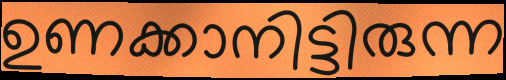
ഉണക്കാനിട്ടിരുന്ന